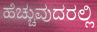
ಹೆಚ್ಚುವುದರಲ್ಲಿ